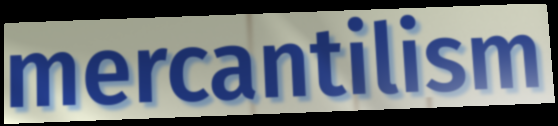
mercantilism